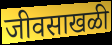
जीवसाखळी